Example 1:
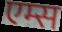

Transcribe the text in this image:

एम्स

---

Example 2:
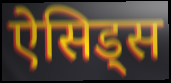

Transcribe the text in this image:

ऐसिड्स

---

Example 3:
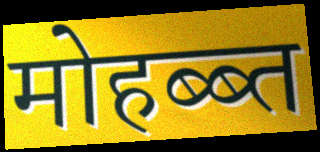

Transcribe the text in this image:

मोहब्ब्त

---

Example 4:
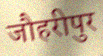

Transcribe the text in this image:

जौहरीपुर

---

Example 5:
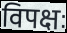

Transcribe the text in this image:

विपक्षः